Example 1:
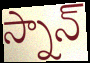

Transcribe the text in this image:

స్నాన్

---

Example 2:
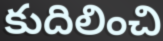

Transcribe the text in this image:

కుదిలించి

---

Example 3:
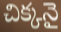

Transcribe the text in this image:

చిక్కనై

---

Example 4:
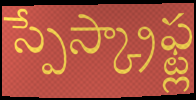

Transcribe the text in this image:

స్పేస్క్రాఫ్ట్ల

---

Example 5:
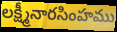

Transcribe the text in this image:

లక్ష్మీనారసింహము